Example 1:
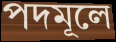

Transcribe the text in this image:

পদমূলে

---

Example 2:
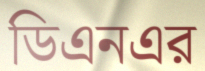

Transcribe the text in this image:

ডিএনএর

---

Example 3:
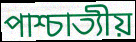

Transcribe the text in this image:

পাশ্চাত্যীয়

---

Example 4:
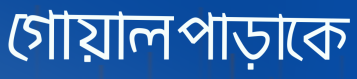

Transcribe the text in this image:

গোয়ালপাড়াকে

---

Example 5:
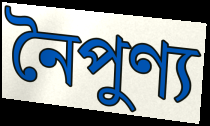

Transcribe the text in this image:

নৈপুণ্য